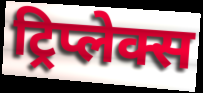
ट्रिप्लेक्स